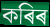
কৰিৰ